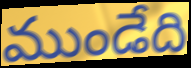
ముండేది